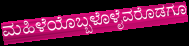
ಮಹಿಳೆಯೊಬ್ಬಳೊಳೈವರೊಡಗೂ